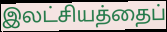
இலட்சியத்தைப்